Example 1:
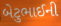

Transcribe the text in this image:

બેટુભાઈની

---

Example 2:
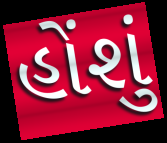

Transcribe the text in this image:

હોંશું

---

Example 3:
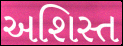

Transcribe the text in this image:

અશિસ્ત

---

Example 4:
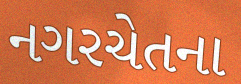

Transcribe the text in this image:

નગરચેતના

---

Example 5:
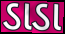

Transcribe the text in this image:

ડાડા